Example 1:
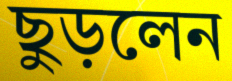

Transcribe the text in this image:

ছুড়লেন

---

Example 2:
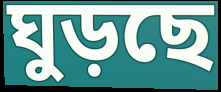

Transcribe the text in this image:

ঘুড়ছে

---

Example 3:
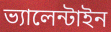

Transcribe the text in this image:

ভ্যালেন্টাইন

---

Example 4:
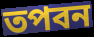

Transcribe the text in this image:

তপবন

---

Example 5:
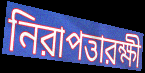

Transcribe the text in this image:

নিরাপত্তারক্ষী